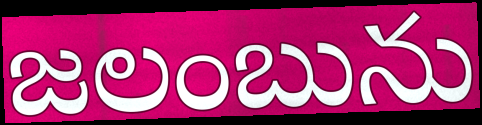
జలంబును